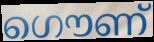
ഗൌണ്